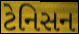
ટેનિસન